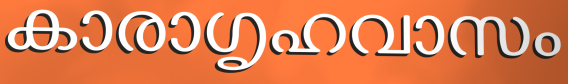
കാരാഗൃഹവാസം